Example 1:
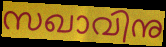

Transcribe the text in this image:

സഖാവിനു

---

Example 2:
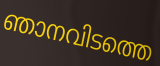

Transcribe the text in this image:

ഞാനവിടത്തെ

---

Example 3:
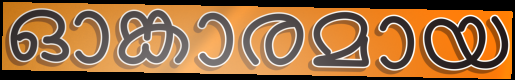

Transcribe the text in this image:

ഓങ്കാരമായ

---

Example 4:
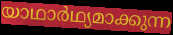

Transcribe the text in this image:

യാഥാർഥ്യമാക്കുന്ന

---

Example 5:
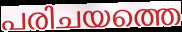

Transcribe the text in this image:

പരിചയത്തെ